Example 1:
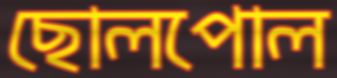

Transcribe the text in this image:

ছোলপোল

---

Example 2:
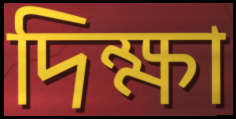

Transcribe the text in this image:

দিক্ষা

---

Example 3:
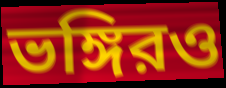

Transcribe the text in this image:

ভঙ্গিরও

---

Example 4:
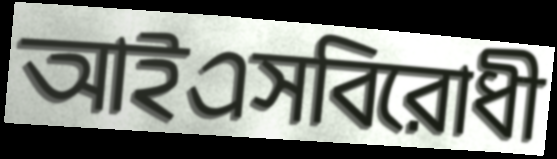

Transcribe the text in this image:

আইএসবিরোধী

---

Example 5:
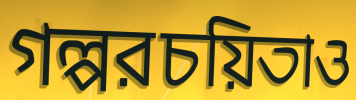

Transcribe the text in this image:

গল্পরচয়িতাও